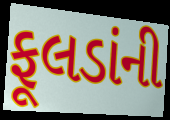
ફૂલડાંની